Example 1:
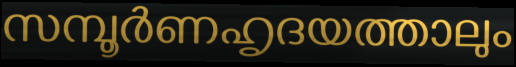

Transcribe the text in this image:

സമ്പൂർണഹൃദയത്താലും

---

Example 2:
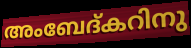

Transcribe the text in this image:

അംബേദ്കറിനു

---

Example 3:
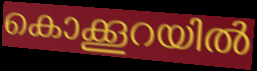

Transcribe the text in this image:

കൊക്കൂറയിൽ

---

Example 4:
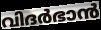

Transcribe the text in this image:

വിദർഭാൻ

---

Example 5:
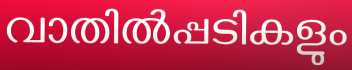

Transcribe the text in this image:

വാതിൽപ്പടികളും